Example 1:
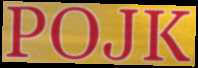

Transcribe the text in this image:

POJK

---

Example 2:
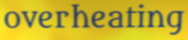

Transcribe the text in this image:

overheating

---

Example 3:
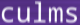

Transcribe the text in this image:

culms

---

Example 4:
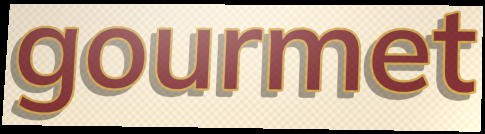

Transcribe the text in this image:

gourmet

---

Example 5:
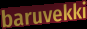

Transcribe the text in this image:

baruvekki